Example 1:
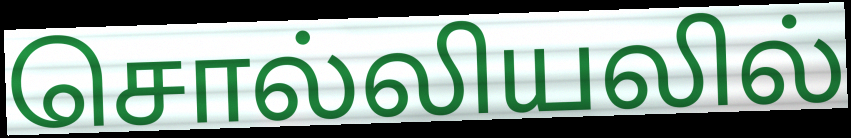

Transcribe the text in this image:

சொல்லியலில்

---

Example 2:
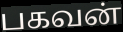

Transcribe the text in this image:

பகவன்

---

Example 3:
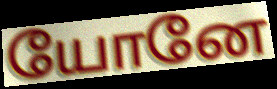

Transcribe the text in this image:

யோனே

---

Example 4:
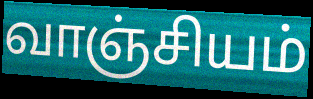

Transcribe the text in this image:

வாஞ்சியம்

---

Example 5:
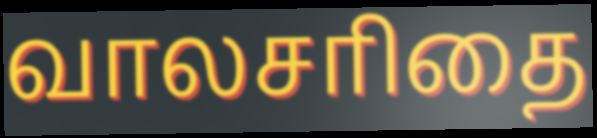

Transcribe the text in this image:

வாலசரிதை